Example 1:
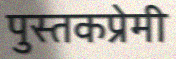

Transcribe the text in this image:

पुस्तकप्रेमी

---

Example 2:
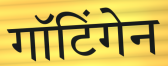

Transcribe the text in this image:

गॉटिंगेन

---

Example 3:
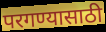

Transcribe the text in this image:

परगण्यासाठी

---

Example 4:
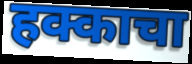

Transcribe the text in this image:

हक्काचा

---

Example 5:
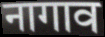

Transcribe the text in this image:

नागाव